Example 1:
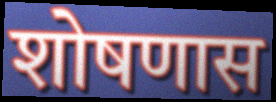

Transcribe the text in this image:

शोषणास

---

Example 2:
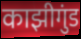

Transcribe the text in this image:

काझीगुंड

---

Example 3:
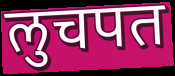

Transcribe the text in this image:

लुचपत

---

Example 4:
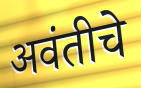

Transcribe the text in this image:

अवंतीचे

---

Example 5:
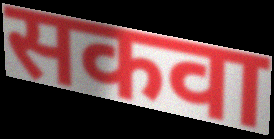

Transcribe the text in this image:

सकवा